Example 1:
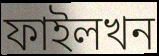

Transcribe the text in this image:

ফাইলখন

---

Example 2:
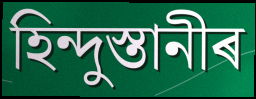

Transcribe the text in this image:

হিন্দুস্তানীৰ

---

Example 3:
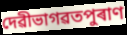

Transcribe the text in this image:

দেৱীভাগৱতপুৰাণ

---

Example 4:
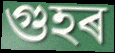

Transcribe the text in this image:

গুহৰ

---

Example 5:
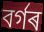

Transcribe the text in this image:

বৰ্গৰ